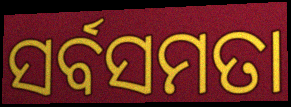
ସର୍ବସମତା